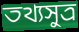
তথ্যসুত্র